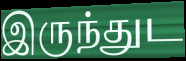
இருந்துட